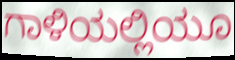
ಗಾಳಿಯಲ್ಲಿಯೂ